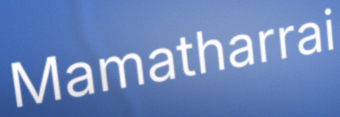
Mamatharrai